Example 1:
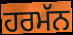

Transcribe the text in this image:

ਹਰਮੱਨ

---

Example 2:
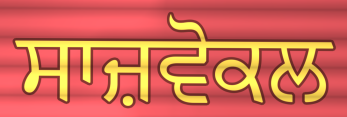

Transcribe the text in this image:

ਸਾਜ਼ਵੋਕਲ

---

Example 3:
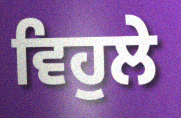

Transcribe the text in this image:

ਵਿਹੁਲੇ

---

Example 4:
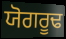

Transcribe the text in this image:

ਯੋਗਰੂਢ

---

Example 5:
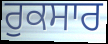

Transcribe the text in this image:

ਰੁਕਸਾਰ